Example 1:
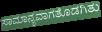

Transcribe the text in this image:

ಸಾಮಾನ್ಯವಾಗತೊಡಗಿತು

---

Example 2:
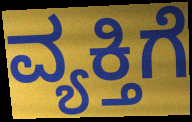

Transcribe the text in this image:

ವ್ಯಕ್ತಿಗೆ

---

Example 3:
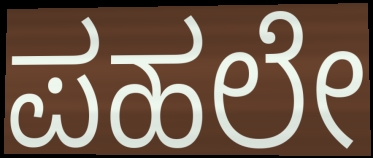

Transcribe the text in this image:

ಪಹಲೇ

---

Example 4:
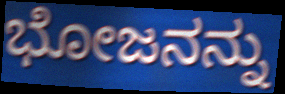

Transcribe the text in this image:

ಭೋಜನನ್ನು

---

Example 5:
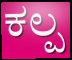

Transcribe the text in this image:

ಕಲ್ಪ